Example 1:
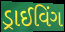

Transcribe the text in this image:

ડ્રાઈવિંગ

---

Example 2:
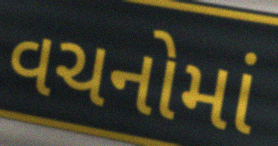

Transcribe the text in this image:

વચનોમાં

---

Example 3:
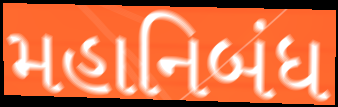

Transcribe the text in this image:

મહાનિબંધ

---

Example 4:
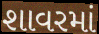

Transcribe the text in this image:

શાવરમાં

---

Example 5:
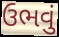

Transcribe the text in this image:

ઉભવું